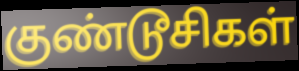
குண்டூசிகள்